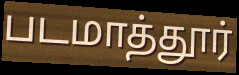
படமாத்தூர்